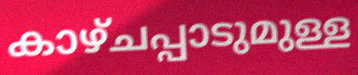
കാഴ്ചപ്പാടുമുള്ള